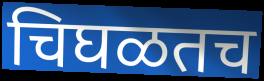
चिघळतच